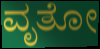
ವೃತೋ